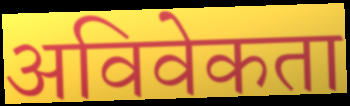
अविवेकता